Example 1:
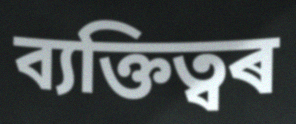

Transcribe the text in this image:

ব্যক্তিত্বৰ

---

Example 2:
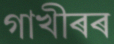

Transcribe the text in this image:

গাখীৰৰ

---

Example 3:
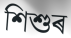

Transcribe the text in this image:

শিশুৰ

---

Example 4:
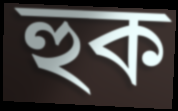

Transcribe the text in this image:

হুক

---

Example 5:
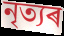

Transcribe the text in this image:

নৃত্যৰ